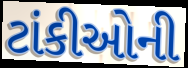
ટાંકીઓની